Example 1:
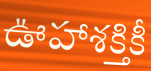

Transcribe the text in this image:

ఊహాశక్తికీ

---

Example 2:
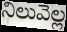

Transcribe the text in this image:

నిలువెల్ల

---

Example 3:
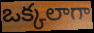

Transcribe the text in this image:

ఒక్కలాగా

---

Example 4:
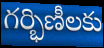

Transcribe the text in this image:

గర్భిణీలకు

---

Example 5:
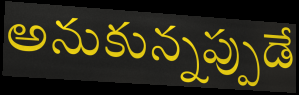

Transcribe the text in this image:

అనుకున్నప్పుడే